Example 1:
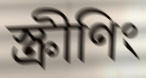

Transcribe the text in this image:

স্ক্ৰীণিং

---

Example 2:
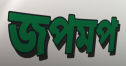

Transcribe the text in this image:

জপমপ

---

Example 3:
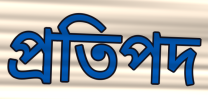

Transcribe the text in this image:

প্ৰতিপদ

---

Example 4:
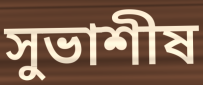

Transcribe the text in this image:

সুভাশীষ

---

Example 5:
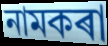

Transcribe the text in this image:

নামকৰা